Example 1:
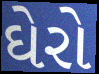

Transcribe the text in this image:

ઘેરો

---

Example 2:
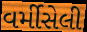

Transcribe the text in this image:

વર્મીસેલી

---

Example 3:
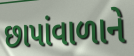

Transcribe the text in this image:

છાપાંવાળાને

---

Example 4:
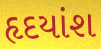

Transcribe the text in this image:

હૃદયાંશ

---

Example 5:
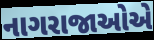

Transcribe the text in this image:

નાગરાજાઓએ